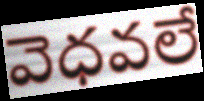
వెధవలే